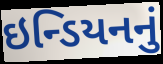
ઇન્ડિયનનું